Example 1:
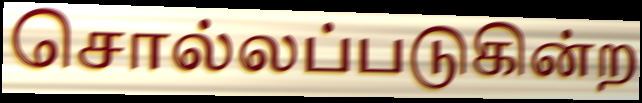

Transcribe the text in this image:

சொல்லப்படுகின்ற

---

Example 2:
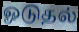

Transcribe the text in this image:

ஓடுதல்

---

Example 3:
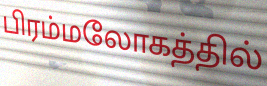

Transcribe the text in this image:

பிரம்மலோகத்தில்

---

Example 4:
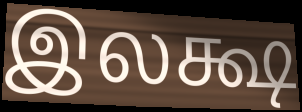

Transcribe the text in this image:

இலக்ஷ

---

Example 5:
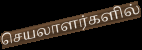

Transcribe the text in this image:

செயலாளர்களில்